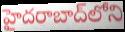
హైదరాబాద్‌లోని